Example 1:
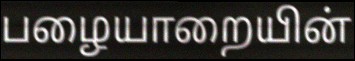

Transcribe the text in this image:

பழையாறையின்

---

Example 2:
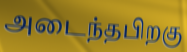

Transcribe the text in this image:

அடைந்தபிறகு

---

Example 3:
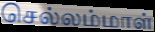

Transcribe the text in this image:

செல்லம்மாள்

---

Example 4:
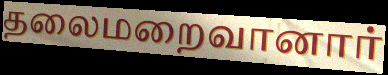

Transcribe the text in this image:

தலைமறைவானார்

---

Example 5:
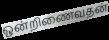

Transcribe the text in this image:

ஒன்றிணைவதன்